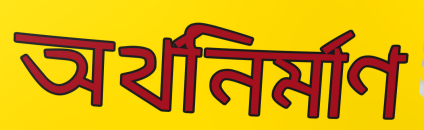
অর্থনির্মাণ